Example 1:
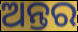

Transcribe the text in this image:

ଅନ୍ତର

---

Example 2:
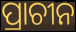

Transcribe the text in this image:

ପ୍ରାଚୀନ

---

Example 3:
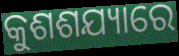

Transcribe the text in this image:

କୁଶଶଯ୍ୟାରେ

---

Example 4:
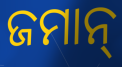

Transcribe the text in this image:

ଜମାନ୍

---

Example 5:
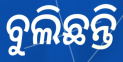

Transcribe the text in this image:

ବୁଲିଛନ୍ତି